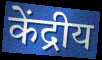
केंद्रीय